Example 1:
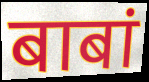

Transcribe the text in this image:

बाबां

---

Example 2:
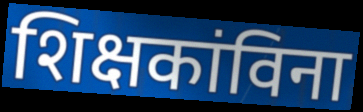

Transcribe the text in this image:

शिक्षकांविना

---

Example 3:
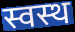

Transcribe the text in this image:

स्वस्थ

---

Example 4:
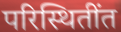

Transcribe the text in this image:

परिस्थितींत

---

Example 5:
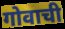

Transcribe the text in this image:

गोवाची